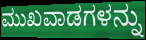
ಮುಖವಾಡಗಳನ್ನು